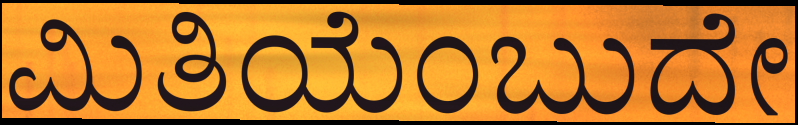
ಮಿತಿಯೆಂಬುದೇ